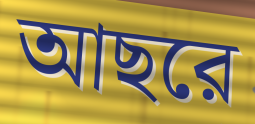
আছরে